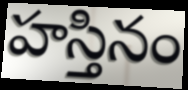
హస్తినం